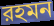
রহমন